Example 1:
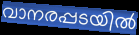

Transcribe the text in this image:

വാനരപ്പടയിൽ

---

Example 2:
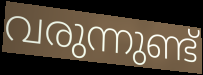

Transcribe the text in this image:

വരുന്നുണ്ട്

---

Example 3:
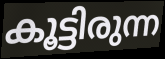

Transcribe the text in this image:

കൂട്ടിരുന്ന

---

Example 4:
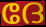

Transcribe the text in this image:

ദേ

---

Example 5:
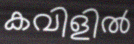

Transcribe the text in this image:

കവിളിൽ